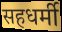
सहधर्मी